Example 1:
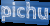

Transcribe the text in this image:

pichu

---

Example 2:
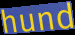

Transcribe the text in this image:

hund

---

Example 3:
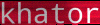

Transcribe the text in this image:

khator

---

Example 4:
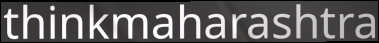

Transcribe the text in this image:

thinkmaharashtra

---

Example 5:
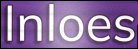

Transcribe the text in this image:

Inloes